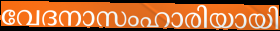
വേദനാസംഹാരിയായി